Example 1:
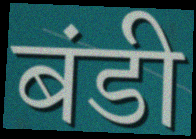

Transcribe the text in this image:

बंडी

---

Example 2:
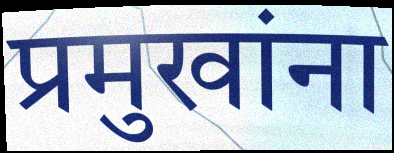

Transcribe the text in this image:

प्रमुखांना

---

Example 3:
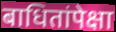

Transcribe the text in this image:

बाधितांपेक्षा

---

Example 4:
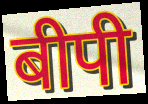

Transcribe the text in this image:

बीपी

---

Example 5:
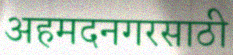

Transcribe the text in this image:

अहमदनगरसाठी